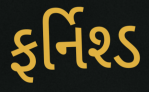
ફર્નિશ્ડ